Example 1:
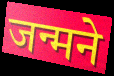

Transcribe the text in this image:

जन्मने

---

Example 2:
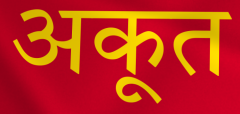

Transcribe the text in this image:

अकूत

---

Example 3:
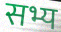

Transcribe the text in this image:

सभ्य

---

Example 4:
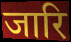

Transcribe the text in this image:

जारि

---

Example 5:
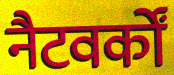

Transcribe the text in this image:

नैटवर्कों